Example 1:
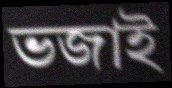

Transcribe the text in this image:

ভজাই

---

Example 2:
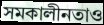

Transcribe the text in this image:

সমকালীনতাও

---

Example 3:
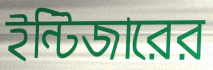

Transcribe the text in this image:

ইন্টিজারের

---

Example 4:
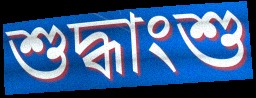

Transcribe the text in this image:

শুদ্ধাংশু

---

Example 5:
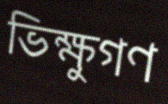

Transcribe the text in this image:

ভিক্ষুগণ